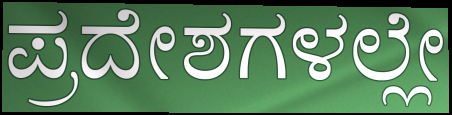
ಪ್ರದೇಶಗಳಲ್ಲೇ